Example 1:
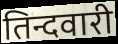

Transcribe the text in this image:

तिन्दवारी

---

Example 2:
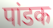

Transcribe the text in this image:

पांडक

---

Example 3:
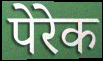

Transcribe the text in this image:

पेरेक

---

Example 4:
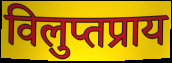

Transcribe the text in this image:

विलुप्तप्राय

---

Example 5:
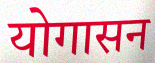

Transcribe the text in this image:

योगासन